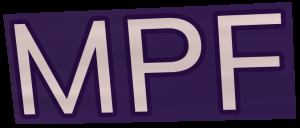
MPF